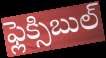
ఫ్లెక్సిబుల్